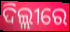
ଦିଲ୍ଲୀରେ